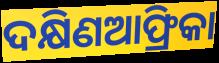
ଦକ୍ଷିଣଆଫ୍ରିକା